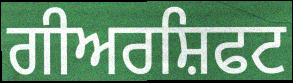
ਗੀਅਰਸ਼ਿਫਟ